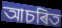
আচৰিত